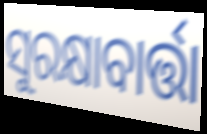
ସୁରକ୍ଷାବାର୍ତ୍ତା